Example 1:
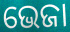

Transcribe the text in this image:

ଭେଜା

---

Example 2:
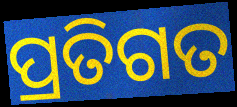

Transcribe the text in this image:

ପ୍ରତିଗତ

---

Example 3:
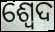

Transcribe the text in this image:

ଶ୍ଵେଦ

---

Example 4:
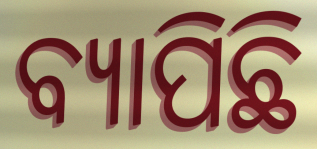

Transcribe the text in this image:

ବ୍ୟାପିଛି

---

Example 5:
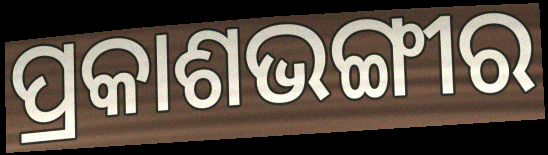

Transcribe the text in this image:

ପ୍ରକାଶଭଙ୍ଗୀର